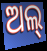
ଅଲ୍